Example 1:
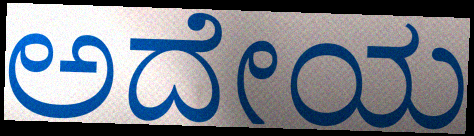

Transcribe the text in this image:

ಅದೇಯ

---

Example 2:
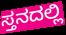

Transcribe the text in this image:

ಸ್ತನದಲ್ಲಿ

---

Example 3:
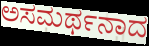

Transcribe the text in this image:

ಅಸಮರ್ಥನಾದ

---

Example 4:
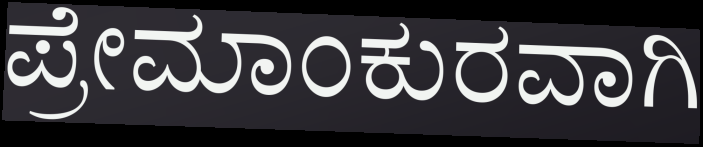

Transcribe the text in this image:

ಪ್ರೇಮಾಂಕುರವಾಗಿ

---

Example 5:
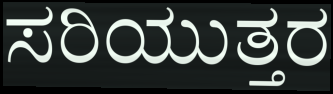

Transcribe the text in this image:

ಸರಿಯುತ್ತರ